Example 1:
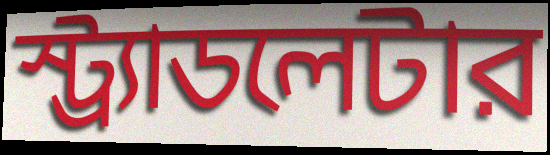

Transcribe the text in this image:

স্ট্র্যাডলেটার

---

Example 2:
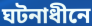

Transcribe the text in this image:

ঘটনাধীনে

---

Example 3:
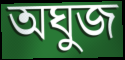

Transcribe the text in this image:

অঘুজ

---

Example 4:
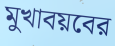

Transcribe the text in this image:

মুখাবয়বের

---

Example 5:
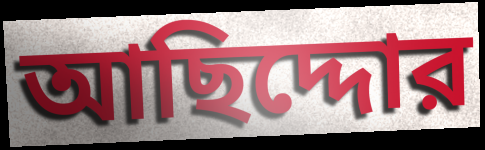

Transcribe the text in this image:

আছিদ্দোর